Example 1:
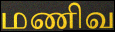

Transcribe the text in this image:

மணிவ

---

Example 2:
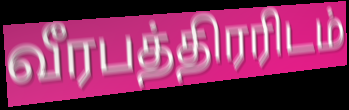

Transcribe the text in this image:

வீரபத்திரரிடம்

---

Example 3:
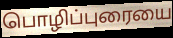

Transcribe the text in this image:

பொழிப்புரையை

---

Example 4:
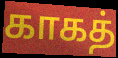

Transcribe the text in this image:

காகத்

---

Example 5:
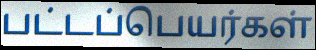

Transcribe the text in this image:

பட்டப்பெயர்கள்